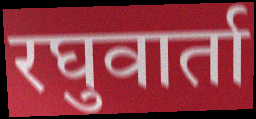
रघुवार्ता